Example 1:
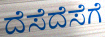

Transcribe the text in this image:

ದೆಸೆದೆಸೆಗೆ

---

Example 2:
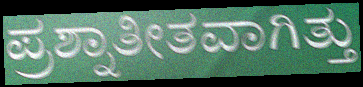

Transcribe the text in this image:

ಪ್ರಶ್ನಾತೀತವಾಗಿತ್ತು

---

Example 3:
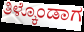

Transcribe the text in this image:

ತಿಳ್ಕೊಂಡಾಗ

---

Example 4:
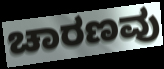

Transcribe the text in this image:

ಚಾರಣವು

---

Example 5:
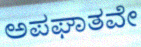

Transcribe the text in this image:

ಅಪಘಾತವೇ